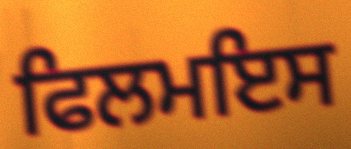
ਫਿਲਮਇਸ